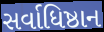
સર્વાધિષ્ઠાન